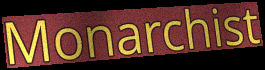
Monarchist